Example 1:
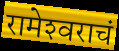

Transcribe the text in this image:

रामेश्वराचं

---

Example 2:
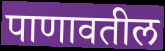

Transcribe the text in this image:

पाणावतील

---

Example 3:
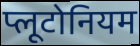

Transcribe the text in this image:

प्लूटोनियम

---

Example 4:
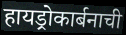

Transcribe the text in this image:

हायड्रोकार्बनाची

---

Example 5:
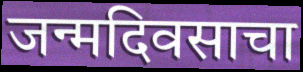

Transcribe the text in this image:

जन्मदिवसाचा